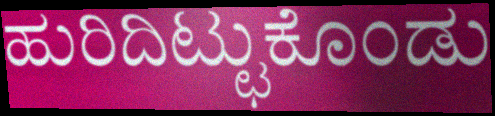
ಹುರಿದಿಟ್ಟುಕೊಂಡು